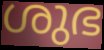
ശുഭ